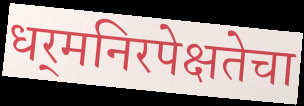
धर्मनिरपेक्षतेचा